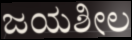
ಜಯಶೀಲ